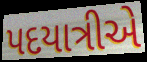
પદયાત્રીએ